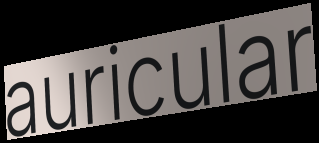
auricular